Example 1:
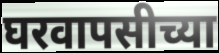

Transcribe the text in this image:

घरवापसीच्या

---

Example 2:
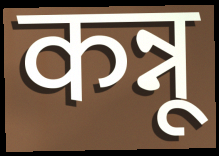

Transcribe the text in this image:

कन्नू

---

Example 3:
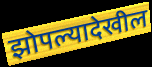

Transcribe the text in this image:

झोपल्यादेखील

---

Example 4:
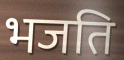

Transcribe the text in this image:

भजति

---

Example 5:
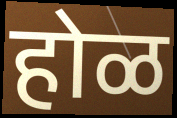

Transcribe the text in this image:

होळ